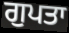
ਗੁਪਤਾ